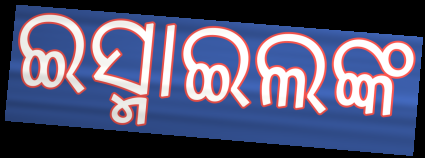
ଇସ୍ମାଇଲଙ୍କ